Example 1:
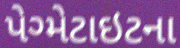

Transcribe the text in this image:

પેગ્મેટાઇટના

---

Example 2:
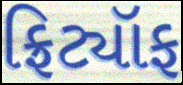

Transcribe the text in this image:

ફ્રિટ્યૉફ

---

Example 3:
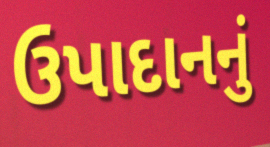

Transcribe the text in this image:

ઉપાદાનનું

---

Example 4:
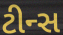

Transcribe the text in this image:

ટીન્સ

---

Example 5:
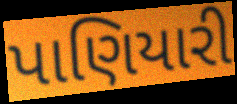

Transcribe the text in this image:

પાણિયારી